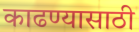
काढण्यासाठी